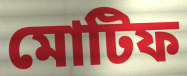
মোটিফ